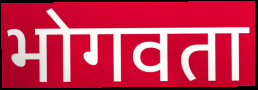
भोगवता